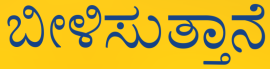
ಬೀಳಿಸುತ್ತಾನೆ